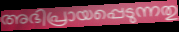
അഭിപ്രായപ്പെടുന്നതു